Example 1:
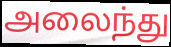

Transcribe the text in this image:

அலைந்து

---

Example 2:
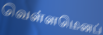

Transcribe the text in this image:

வெள்ளமெனப்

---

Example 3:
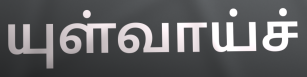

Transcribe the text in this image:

யுள்வாய்ச்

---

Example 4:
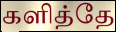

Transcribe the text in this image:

களித்தே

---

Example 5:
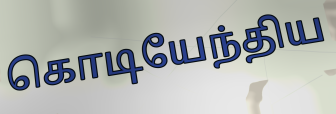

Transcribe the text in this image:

கொடியேந்திய